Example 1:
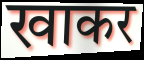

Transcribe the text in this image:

खाकर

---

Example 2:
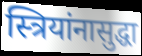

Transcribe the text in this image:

स्त्रियांनासुद्धा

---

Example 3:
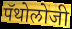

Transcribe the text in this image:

पॅथोलोजी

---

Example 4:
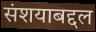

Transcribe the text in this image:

संशयाबद्दल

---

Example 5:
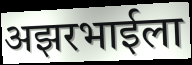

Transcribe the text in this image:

अझरभाईला